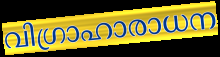
വിഗ്രാഹാരാധന